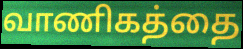
வாணிகத்தை